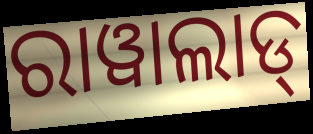
ରାୱାଲାଡ୍